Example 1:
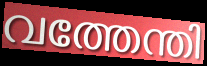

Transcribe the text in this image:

വത്തേന്തി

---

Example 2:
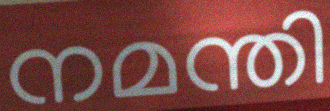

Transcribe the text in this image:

നമന്തി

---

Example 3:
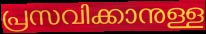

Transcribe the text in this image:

പ്രസവിക്കാനുള്ള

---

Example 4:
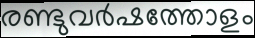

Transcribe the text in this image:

രണ്ടുവർഷത്തോളം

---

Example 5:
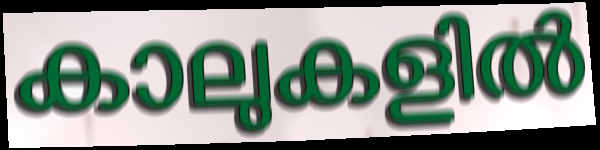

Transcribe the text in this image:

കാലുകളിൽ